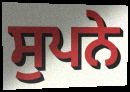
ਸੁਪਨੇ